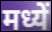
मध्यें